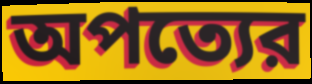
অপত্যের